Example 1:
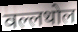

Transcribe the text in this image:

वल्लथोल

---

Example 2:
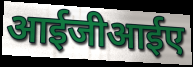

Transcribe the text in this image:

आईजीआईए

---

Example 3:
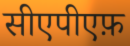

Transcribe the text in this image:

सीएपीएफ़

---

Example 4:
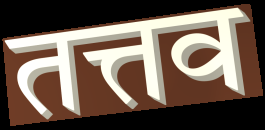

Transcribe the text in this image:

तत्तव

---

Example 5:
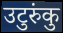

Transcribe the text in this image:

उटुरुंकु